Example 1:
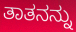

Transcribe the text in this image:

ತಾತನನ್ನು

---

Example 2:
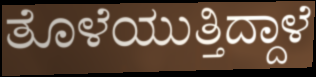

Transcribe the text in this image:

ತೊಳೆಯುತ್ತಿದ್ದಾಳೆ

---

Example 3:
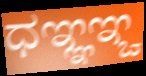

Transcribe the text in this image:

ಧಞ್ಞಞ್ಚ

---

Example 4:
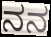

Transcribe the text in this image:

ನನ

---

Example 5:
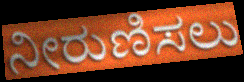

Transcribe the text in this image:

ನೀರುಣಿಸಲು